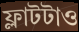
ফ্লাটটাও